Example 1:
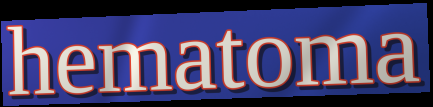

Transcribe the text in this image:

hematoma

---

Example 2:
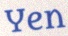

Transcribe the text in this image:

Yen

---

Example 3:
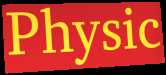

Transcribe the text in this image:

Physic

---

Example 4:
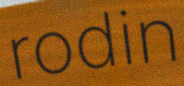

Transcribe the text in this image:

rodin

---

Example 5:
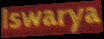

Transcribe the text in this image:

Iswarya